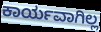
ಕಾರ್ಯವಾಗಿಲ್ಲ